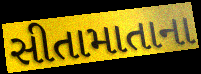
સીતામાતાના